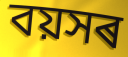
বয়সৰ